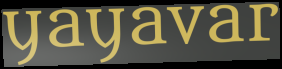
yayavar